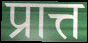
प्रात्त